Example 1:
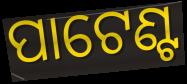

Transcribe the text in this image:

ପାଟେଣ୍ଟ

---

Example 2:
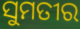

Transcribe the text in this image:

ସୁମତୀର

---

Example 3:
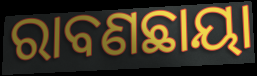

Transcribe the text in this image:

ରାବଣଛାୟା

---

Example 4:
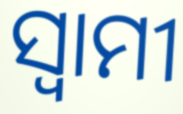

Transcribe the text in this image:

ସ୍ବାମୀ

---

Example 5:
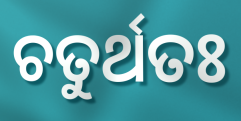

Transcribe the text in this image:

ଚତୁର୍ଥତଃ